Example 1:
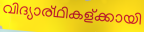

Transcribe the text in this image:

വിദ്യാര്ഥികള്ക്കായി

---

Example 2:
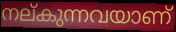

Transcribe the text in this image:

നല്കുന്നവയാണ്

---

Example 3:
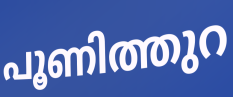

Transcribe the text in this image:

പൂണിത്തുറ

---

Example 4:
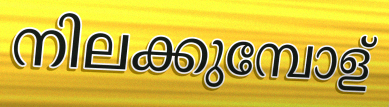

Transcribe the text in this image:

നിലക്കുമ്പോള്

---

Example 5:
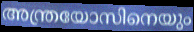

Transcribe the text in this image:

അന്ത്രയോസിനെയും